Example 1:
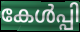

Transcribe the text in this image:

കേൾപ്പി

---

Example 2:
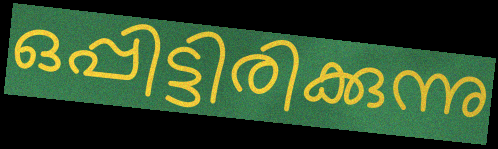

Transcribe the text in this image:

ഒപ്പിട്ടിരിക്കുന്നു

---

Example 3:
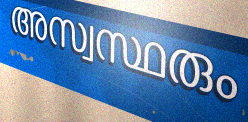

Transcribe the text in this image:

അസ്വസ്ഥരും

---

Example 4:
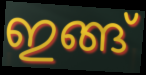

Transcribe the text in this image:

ഇങ്ങ്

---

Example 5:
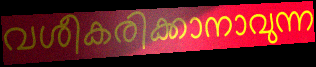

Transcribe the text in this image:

വശീകരിക്കാനാവുന്ന